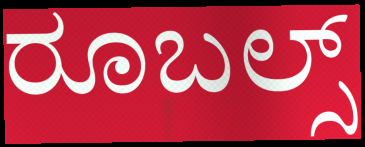
ರೂಬಲ್ಸ್